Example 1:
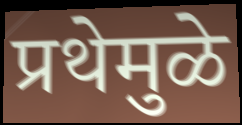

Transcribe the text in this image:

प्रथेमुळे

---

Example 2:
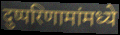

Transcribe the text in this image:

दुष्परिणामांमध्ये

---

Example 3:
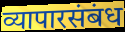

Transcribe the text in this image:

व्यापारसंबंध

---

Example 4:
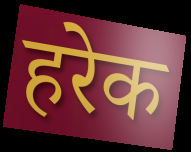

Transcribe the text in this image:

हरेक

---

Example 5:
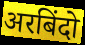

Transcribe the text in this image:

अरबिंदो